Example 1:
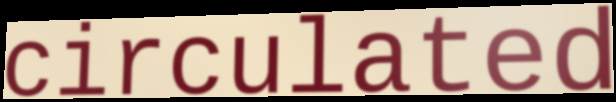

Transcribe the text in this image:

circulated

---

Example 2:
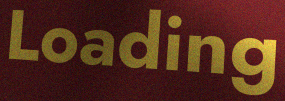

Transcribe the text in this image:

Loading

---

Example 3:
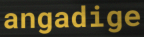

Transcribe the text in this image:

angadige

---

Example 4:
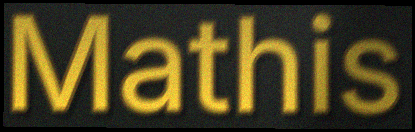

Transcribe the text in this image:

Mathis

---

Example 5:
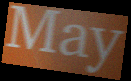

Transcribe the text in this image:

May